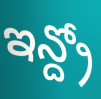
ఇన్ద్రో